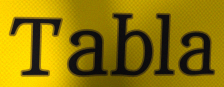
Tabla